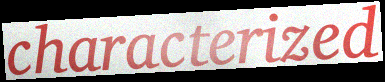
characterized